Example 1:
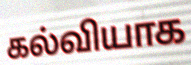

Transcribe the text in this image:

கல்வியாக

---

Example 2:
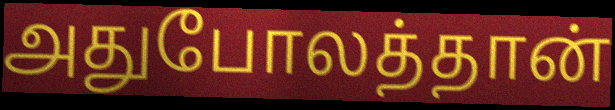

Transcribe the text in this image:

அதுபோலத்தான்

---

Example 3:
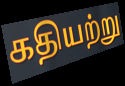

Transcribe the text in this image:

கதியற்று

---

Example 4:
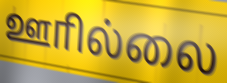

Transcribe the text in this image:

ஊரில்லை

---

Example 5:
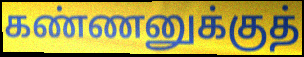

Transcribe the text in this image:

கண்ணனுக்குத்